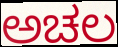
ಅಚಲ